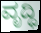
ವೃದ್ಧಿ